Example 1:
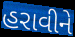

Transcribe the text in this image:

હરાવીને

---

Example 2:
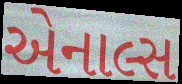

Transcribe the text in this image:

એનાલ્સ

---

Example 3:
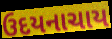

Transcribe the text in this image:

ઉદયનાચાય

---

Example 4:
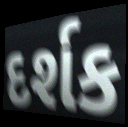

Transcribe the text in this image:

દર્શક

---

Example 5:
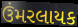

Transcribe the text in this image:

ઉંમરલાયક